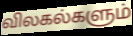
விலகல்களும்